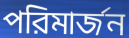
পরিমার্জন